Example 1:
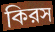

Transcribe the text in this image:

কিরস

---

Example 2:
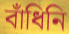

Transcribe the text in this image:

বাঁধিনি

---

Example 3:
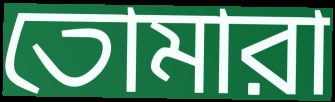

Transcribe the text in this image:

তোমারা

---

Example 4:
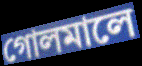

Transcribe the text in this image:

গোলমালে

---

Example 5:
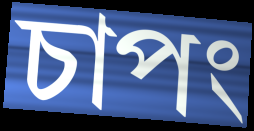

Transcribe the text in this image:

চাপং